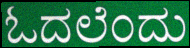
ಓದಲೆಂದು